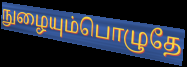
நுழையும்பொழுதே